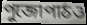
পুজোপাঠও